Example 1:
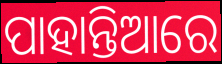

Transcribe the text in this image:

ପାହାନ୍ତିଆରେ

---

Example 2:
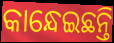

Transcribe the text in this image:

କାନ୍ଧେଇଛନ୍ତି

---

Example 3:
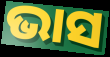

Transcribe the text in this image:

ଭାସ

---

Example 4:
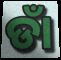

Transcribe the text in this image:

ଡାଁ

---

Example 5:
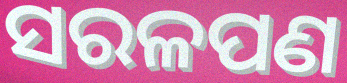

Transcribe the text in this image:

ସରଳପଣ